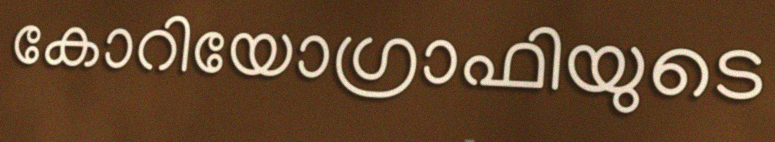
കോറിയോഗ്രാഫിയുടെ